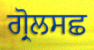
ਗ੍ਰੋਲਸਛ